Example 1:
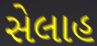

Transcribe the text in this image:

સેલાહ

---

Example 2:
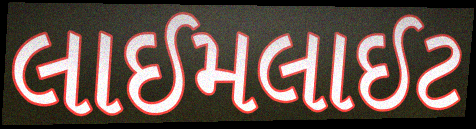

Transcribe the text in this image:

લાઈમલાઈટ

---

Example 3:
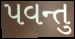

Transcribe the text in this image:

પવન્તુ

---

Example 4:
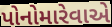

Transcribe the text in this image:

પોનોમારેવાએ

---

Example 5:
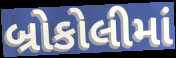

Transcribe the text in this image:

બ્રોકોલીમાં